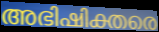
അഭിഷിക്തരെ